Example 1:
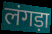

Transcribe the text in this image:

लंगड़ा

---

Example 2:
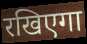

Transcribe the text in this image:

रखिएगा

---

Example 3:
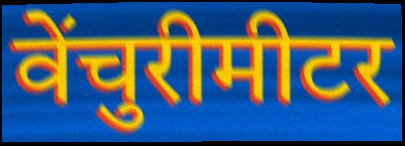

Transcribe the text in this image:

वेंचुरीमीटर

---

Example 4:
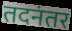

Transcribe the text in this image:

तदनंतर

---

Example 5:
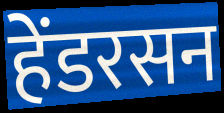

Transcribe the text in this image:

हेंडरसन